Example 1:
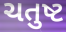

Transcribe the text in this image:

ચતુષ્ટ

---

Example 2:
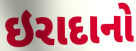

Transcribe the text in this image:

ઇરાદાનો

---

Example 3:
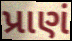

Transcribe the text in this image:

પ્રાણં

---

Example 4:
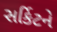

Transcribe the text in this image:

સર્કિટને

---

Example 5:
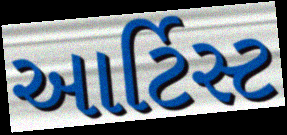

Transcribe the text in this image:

આર્ટિસ્ટ